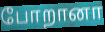
போறானா